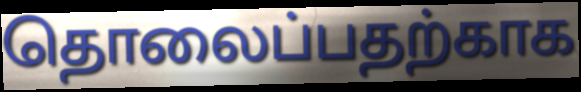
தொலைப்பதற்காக